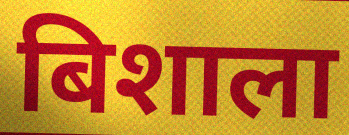
बिशाला